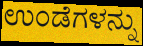
ಉಂಡೆಗಳನ್ನು